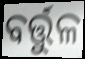
ବର୍ତ୍ତୁଳ